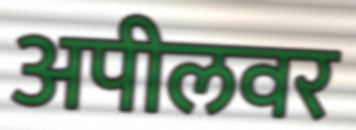
अपीलवर